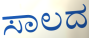
ಸಾಲದ